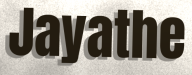
Jayathe